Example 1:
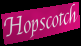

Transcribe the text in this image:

Hopscotch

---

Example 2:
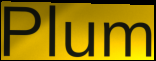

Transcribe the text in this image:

Plum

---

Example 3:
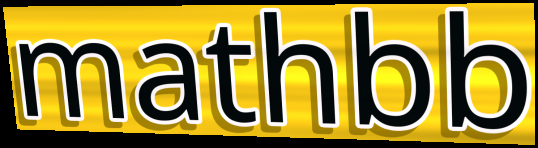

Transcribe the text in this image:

mathbb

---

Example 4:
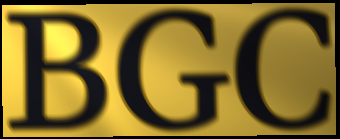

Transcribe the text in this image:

BGC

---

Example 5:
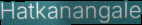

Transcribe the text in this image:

Hatkanangale